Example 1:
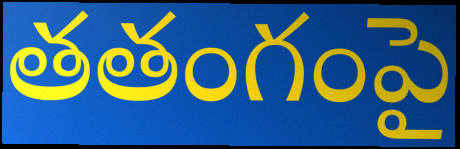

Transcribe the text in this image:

తతంగంపై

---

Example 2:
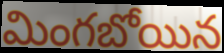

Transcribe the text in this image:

మింగబోయిన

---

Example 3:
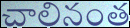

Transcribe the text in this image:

చాలినంత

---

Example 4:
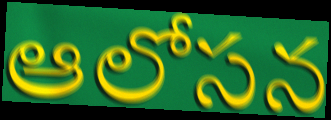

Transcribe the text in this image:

ఆలోసన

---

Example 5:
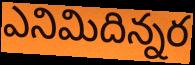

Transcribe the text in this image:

ఎనిమిదిన్నర